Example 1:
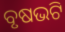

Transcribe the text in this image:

ବୃଷଭଟି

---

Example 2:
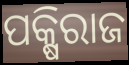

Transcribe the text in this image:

ପକ୍ଷିରାଜ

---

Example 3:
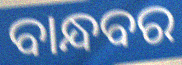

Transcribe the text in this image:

ବାନ୍ଧବର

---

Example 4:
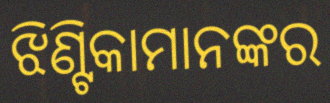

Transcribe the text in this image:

ଝିଣ୍ଟିକାମାନଙ୍କର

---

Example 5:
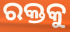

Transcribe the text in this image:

ରକ୍ତକୁ